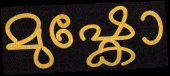
മുഷ്കോ